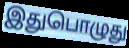
இதுபொழுது